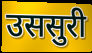
उससुरी